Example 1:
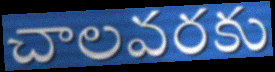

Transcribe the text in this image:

చాలవరకు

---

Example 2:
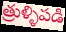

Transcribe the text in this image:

త్రుళ్ళిపడి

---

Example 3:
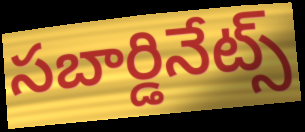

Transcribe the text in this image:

సబార్డినేట్స్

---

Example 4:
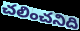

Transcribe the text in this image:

చలించనిది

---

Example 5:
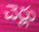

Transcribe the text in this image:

చెర్లు